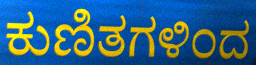
ಕುಣಿತಗಳಿಂದ